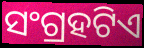
ସଂଗ୍ରହଟିଏ